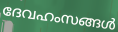
ദേവഹംസങ്ങൾ